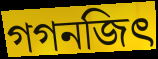
গগনজিৎ